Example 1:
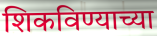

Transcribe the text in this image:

शिकविण्याच्या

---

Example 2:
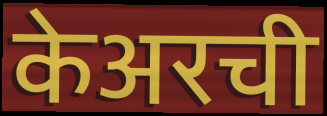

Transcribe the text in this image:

केअरची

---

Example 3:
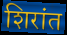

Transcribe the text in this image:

शिरांत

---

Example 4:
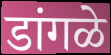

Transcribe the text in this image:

डांगळे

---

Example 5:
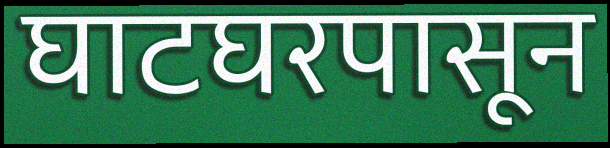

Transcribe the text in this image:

घाटघरपासून